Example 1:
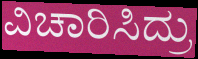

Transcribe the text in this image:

ವಿಚಾರಿಸಿದ್ರು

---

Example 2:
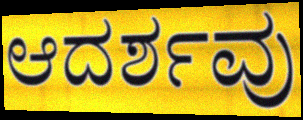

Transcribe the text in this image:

ಆದರ್ಶವು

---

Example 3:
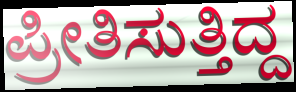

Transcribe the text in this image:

ಪ್ರೀತಿಸುತ್ತಿದ್ದ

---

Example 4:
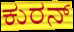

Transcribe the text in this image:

ಕುರನ್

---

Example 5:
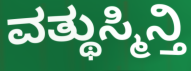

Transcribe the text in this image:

ವತ್ಥುಸ್ಮಿನ್ತಿ